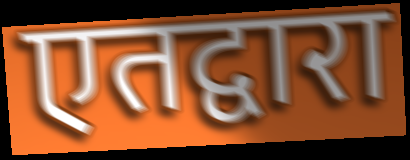
एतद्वारा